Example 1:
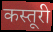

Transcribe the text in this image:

कस्तूरी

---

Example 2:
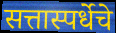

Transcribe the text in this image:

सत्तास्पर्धेचे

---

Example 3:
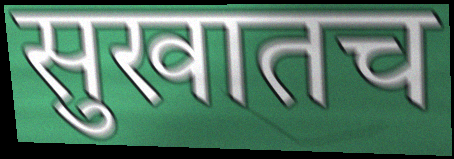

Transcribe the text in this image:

सुखातच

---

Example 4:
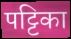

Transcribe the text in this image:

पट्टिका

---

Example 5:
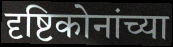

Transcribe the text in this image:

दृष्टिकोनांच्या